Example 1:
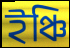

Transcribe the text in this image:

ইঞ্চি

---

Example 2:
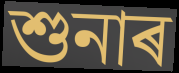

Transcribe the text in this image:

শুনাৰ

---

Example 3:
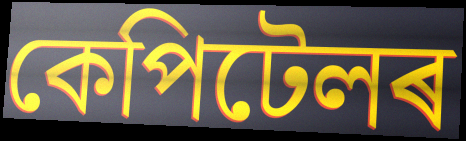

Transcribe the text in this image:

কেপিটেলৰ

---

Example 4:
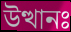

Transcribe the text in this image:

উত্থানঃ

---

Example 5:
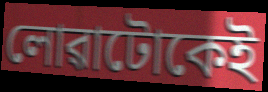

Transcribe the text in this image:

লোৱাটোকেই